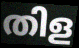
തിള